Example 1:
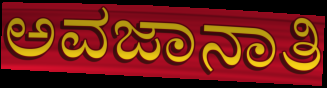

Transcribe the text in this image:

ಅವಜಾನಾತಿ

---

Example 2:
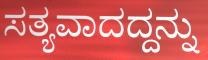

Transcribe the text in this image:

ಸತ್ಯವಾದದ್ದನ್ನು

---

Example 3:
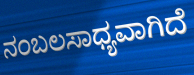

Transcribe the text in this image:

ನಂಬಲಸಾಧ್ಯವಾಗಿದೆ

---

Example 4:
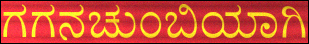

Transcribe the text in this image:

ಗಗನಚುಂಬಿಯಾಗಿ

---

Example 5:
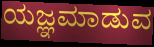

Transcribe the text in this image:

ಯಜ್ಞಮಾಡುವ